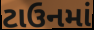
ટાઉનમાં